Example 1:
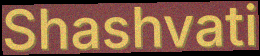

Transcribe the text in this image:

Shashvati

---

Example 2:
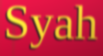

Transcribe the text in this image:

Syah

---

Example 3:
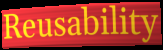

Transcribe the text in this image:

Reusability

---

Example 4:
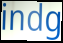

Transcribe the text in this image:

indg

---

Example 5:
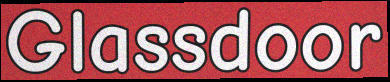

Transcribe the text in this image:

Glassdoor